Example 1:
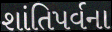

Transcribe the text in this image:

શાંતિપર્વના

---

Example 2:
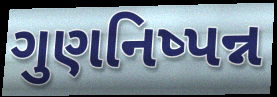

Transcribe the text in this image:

ગુણનિષ્પન્ન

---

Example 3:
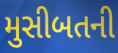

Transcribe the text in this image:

મુસીબતની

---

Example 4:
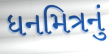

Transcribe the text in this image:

ધનમિત્રનું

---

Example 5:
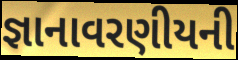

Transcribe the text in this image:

જ્ઞાનાવરણીયની